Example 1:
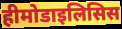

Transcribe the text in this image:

हीमोडाइलिसिस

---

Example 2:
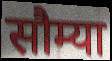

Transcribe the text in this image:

सौम्या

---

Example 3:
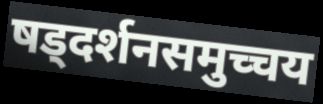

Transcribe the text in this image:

षड्दर्शनसमुच्चय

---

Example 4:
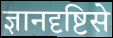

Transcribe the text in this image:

ज्ञानदृष्टिसे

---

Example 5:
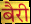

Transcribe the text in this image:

बैरी